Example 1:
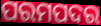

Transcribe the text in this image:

ପରମପଦର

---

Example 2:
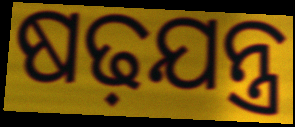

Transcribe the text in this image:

ଷଢ଼ଯନ୍ତ୍ର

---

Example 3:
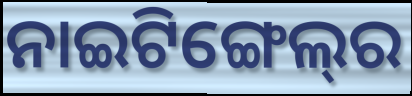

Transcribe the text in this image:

ନାଇଟିଙ୍ଗେଲ୍‌ର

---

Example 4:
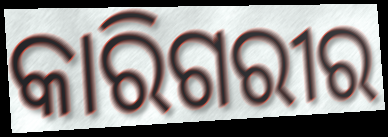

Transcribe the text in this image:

କାରିଗରୀର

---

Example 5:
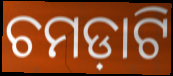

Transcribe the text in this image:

ଚମଡ଼ାଟି